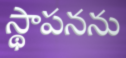
స్థాపనను